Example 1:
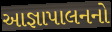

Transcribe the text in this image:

આજ્ઞાપાલનનો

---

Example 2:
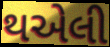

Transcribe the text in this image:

થએલી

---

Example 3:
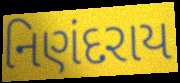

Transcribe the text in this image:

નિણંદરાય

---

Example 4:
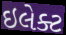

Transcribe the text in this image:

ઇલેક્ટ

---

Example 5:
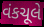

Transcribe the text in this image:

વંકચૂલે